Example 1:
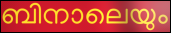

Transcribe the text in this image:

ബിനാലെയും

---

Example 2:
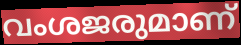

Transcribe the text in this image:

വംശജരുമാണ്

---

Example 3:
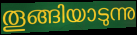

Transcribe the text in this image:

തൂങ്ങിയാടുന്നു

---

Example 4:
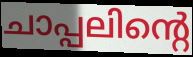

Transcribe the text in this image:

ചാപ്പലിന്റെ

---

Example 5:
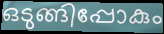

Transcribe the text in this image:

ഒടുങ്ങിപ്പോകും